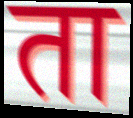
ता